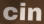
cin